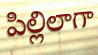
పిల్లిలాగా